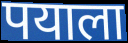
पयाला